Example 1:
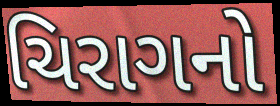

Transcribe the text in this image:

ચિરાગનો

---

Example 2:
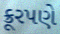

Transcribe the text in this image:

ક્રૂરપણે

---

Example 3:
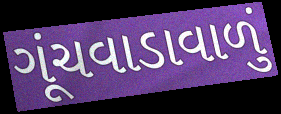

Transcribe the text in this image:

ગૂંચવાડાવાળું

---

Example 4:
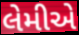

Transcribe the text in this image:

લેમીએ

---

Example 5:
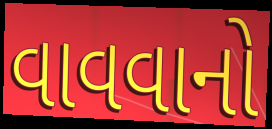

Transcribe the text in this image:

વાવવાનો